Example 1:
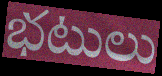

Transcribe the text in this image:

భటులు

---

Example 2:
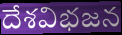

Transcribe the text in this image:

దేశవిభజన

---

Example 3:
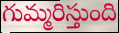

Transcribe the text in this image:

గుమ్మరిస్తుంది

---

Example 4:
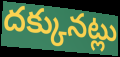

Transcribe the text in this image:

దక్కునట్లు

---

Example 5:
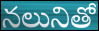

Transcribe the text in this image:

నలునితో